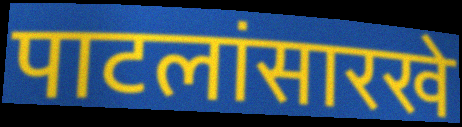
पाटलांसारखे